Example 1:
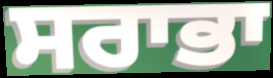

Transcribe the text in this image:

ਸਰਾਭਾ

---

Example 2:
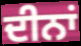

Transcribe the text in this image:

ਦੀਨਾਂ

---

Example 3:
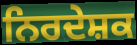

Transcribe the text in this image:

ਨਿਰਦੇਸ਼ਕ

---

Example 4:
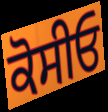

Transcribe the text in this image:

ਕੋਸੀਓ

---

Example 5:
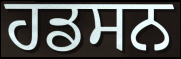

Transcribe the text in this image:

ਹਡਸਨ